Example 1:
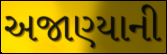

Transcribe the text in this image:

અજાણ્યાની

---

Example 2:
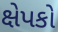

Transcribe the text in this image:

ક્ષેપકો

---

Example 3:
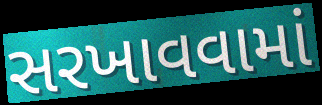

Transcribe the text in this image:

સરખાવવામાં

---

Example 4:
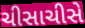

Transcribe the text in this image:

ચીસાચીસે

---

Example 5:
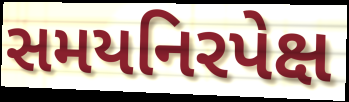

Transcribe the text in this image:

સમયનિરપેક્ષ